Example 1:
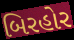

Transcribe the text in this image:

બિરહોર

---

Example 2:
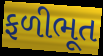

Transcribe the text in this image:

ફળીભૂત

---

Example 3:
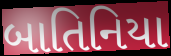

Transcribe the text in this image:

બાતિનિયા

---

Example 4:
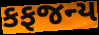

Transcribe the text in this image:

કફજન્ય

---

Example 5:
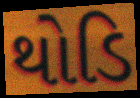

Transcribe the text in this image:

થોડિ